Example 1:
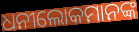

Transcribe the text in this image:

ଧନୀଲୋକମାନଙ୍କ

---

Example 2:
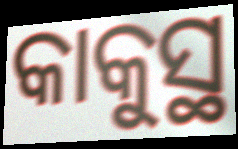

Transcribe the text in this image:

କାକୁସ୍ଥ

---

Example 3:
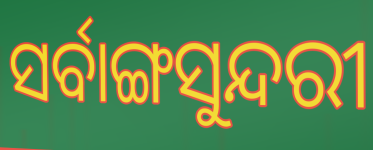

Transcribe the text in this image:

ସର୍ବାଙ୍ଗସୁନ୍ଦରୀ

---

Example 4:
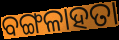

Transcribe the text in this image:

ବଙ୍ଗଳାହତା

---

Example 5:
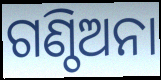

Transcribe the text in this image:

ଗଣ୍ଠିଅନା